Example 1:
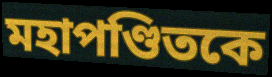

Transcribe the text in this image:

মহাপণ্ডিতকে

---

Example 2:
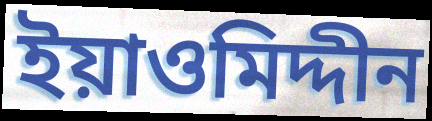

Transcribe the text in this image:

ইয়াওমিদ্দীন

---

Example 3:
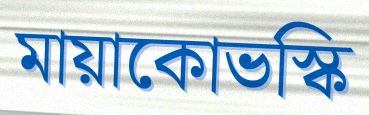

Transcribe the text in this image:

মায়াকোভস্কি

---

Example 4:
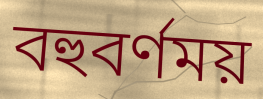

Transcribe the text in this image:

বহুবর্ণময়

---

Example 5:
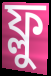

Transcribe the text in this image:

ফ্লু